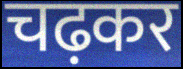
चढ़कर